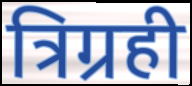
त्रिग्रही